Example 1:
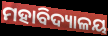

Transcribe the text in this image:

ମହାବିଦ୍ୟାଳୟ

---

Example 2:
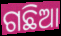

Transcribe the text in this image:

ଗଛିଆ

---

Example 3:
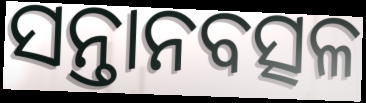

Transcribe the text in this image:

ସନ୍ତାନବତ୍ସଳ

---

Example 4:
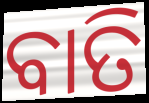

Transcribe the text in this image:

ବାତି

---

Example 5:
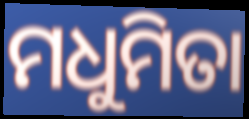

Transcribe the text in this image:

ମଧୁମିତା